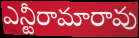
ఎన్టీరామారావు